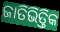
ଜାତିଭିତ୍ତିକ